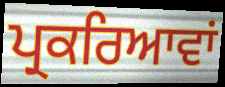
ਪ੍ਰਕਰਿਆਵਾਂ